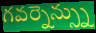
గవర్నెన్స్ను